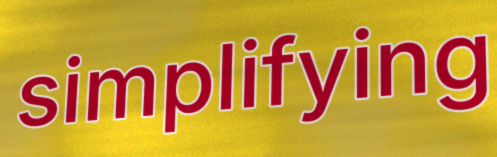
simplifying